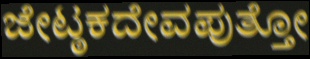
ಜೇಟ್ಠಕದೇವಪುತ್ತೋ